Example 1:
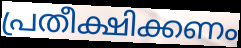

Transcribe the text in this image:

പ്രതീക്ഷിക്കണം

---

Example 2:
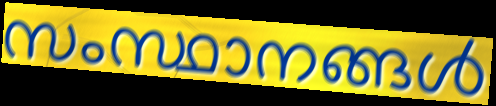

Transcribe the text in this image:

സംസ്ഥാനങ്ങൾ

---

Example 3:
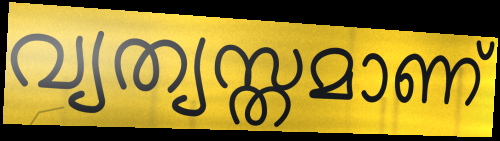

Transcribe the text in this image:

വ്യത്യസ്തമാണ്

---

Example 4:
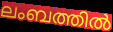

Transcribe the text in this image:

ലംബത്തിൽ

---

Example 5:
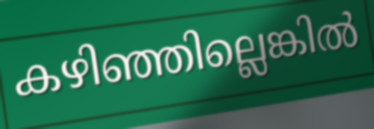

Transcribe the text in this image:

കഴിഞ്ഞില്ലെങ്കിൽ